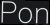
Pon